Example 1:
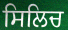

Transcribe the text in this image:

ਸਿਲਿਚ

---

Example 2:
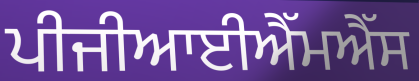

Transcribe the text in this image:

ਪੀਜੀਆਈਐੱਮਐੱਸ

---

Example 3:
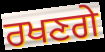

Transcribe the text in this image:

ਰਖਣਗੇ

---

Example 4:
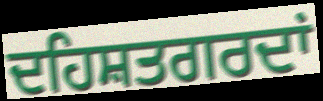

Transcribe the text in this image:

ਦਹਿਸ਼ਤਗਰਦਾਂ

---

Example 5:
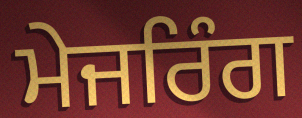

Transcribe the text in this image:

ਮੇਜਰਿੰਗ